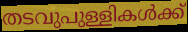
തടവുപുള്ളികൾക്ക്